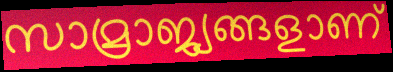
സാമ്രാജ്യങ്ങളാണ്